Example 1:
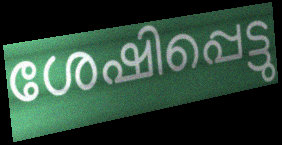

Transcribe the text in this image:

ശേഷിപ്പെട്ടു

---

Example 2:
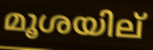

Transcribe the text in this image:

മൂശയില്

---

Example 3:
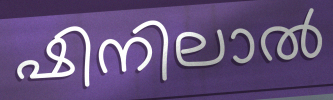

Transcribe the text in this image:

ഷിനിലാൽ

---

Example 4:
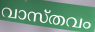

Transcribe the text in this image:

വാസ്തവം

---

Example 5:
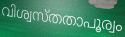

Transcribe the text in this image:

വിശ്വസ്തതാപൂര്വം